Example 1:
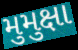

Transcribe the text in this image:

મુમુક્ષા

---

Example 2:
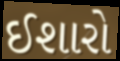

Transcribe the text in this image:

ઈશારો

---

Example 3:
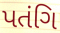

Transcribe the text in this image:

પતંગિ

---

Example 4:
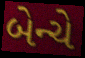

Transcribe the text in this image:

બેન્ચે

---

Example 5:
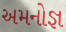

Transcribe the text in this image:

અમનોજ્ઞ